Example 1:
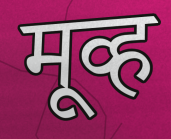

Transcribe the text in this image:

मूव्ह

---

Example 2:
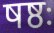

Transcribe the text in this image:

षष्ठः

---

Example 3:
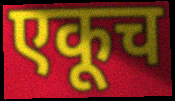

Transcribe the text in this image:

एकूच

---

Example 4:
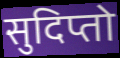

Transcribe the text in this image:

सुदिप्तो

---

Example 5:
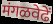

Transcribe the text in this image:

मंगळवेढें